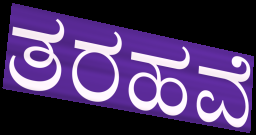
ತರಹವೆ